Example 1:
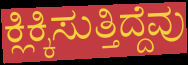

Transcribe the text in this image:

ಕ್ಲಿಕ್ಕಿಸುತ್ತಿದ್ದೆವು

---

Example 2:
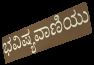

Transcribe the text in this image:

ಭವಿಷ್ಯವಾಣಿಯು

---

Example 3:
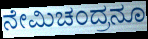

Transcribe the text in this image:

ನೇಮಿಚಂದ್ರನೂ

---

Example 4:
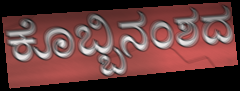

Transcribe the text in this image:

ಕೊಬ್ಬಿನಂಶದ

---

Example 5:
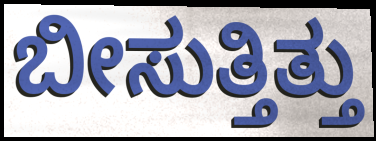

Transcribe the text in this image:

ಬೀಸುತ್ತಿತ್ತು